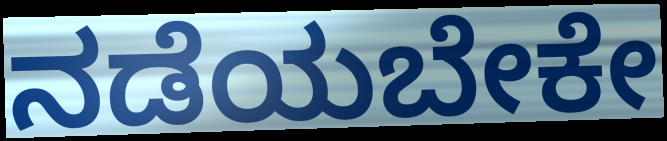
ನಡೆಯಬೇಕೇ